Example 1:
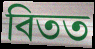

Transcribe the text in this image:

বিতত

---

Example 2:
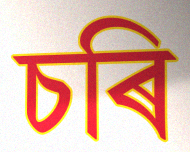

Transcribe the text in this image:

চৰি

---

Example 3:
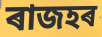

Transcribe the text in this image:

ৰাজহৰ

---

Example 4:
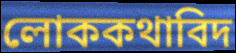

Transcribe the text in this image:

লোককথাবিদ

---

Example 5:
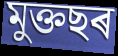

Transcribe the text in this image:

মুক্তছৰ